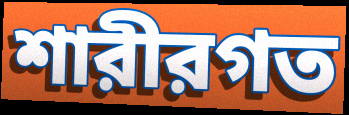
শারীরগত